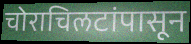
चोराचिलटांपासून